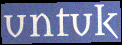
untuk